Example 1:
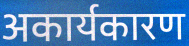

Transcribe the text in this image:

अकार्यकारण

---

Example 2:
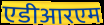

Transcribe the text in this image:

एडीआरएम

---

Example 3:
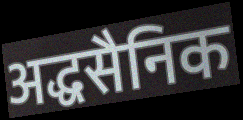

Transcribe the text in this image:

अद्धसैनिक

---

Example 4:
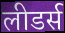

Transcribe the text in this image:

लीडर्स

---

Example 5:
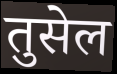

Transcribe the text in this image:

तुसेल